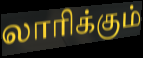
லாரிக்கும்